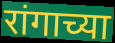
रांगाच्या